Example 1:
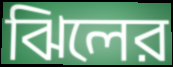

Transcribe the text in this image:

ঝিলের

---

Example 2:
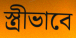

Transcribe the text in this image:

স্ত্রীভাবে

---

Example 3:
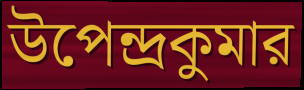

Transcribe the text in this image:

উপেন্দ্রকুমার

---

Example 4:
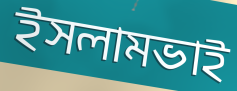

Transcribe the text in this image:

ইসলামভাই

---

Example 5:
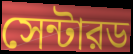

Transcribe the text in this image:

সেন্টারড